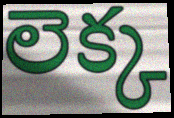
లెక్క